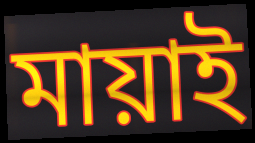
মায়াই